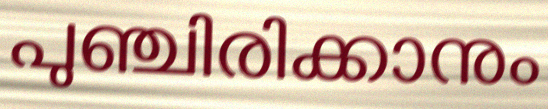
പുഞ്ചിരിക്കാനും